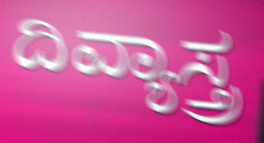
ದಿವ್ಯಾಸ್ತ್ರ